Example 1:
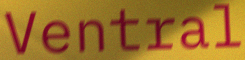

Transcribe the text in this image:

Ventral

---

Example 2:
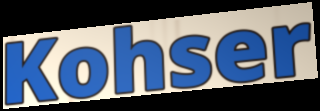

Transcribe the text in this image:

Kohser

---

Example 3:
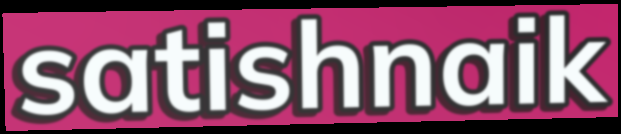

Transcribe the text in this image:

satishnaik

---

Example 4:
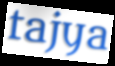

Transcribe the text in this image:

tajya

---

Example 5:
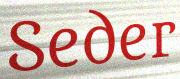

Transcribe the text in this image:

Seder